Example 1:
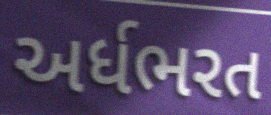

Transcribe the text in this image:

અર્ધભરત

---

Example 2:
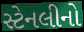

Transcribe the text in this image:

સ્ટેનલીનો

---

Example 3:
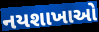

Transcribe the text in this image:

નયશાખાઓ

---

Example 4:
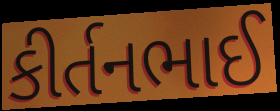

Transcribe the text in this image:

કીર્તનભાઈ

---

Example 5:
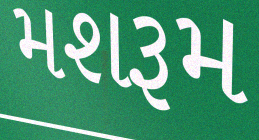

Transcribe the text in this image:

મશરૂમ